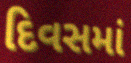
દિવસમાં